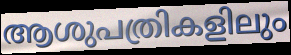
ആശുപത്രികളിലും